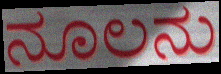
ನೂಲನು